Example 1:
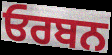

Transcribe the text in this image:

ਓਰਬਨ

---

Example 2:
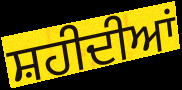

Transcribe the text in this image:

ਸ਼ਹੀਦੀਆਂ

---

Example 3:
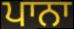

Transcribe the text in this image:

ਪਾਨਾ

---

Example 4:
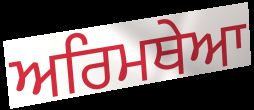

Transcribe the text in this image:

ਅਰਿਮਥੇਆ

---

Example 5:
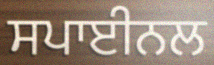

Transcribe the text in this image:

ਸਪਾਈਨਲ